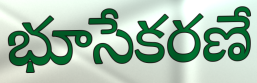
భూసేకరణే